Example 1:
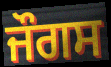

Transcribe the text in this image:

ਜੌਗਸ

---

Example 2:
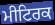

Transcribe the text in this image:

ਮੀਟਿਰਕ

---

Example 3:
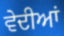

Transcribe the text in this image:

ਵੇਦੀਆਂ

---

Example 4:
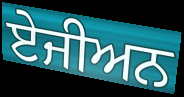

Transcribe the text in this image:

ਏਜੀਅਨ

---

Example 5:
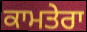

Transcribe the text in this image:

ਕਾਮਤੇਰਾ